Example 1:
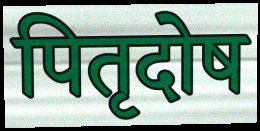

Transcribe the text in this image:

पितृदोष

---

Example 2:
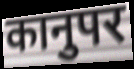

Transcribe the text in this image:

कानुपर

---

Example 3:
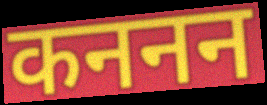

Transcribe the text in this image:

कननन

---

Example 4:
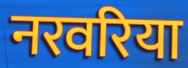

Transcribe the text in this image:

नरवरिया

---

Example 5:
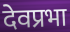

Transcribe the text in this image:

देवप्रभा